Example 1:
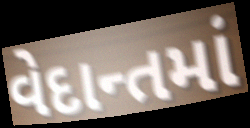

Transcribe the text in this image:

વેદાન્તમાં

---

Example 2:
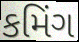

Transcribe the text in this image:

કમિંગ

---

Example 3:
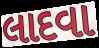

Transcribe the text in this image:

લાદવા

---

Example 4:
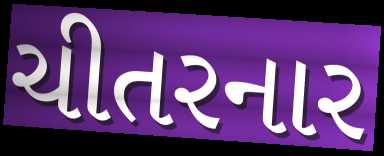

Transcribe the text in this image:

ચીતરનાર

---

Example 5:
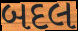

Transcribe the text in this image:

બદલ